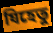
যিহেতু